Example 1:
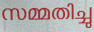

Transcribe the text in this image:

സമ്മതിച്ചു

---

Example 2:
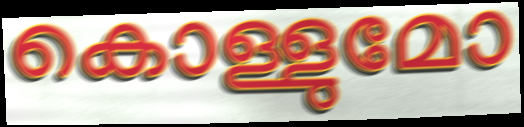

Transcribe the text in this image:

കൊള്ളുമോ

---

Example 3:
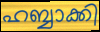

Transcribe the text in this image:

ഹബ്ബാക്കി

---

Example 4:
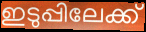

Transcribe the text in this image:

ഇടുപ്പിലേക്ക്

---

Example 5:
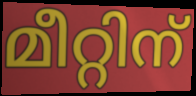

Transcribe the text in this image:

മീറ്റിന്